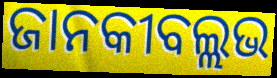
ଜାନକୀବଲ୍ଲଭ